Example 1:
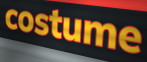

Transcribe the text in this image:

costume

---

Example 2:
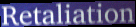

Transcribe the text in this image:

Retaliation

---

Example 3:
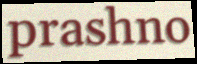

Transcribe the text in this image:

prashno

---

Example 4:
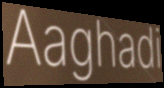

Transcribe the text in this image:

Aaghadi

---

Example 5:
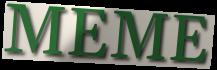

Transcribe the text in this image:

MEME